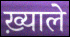
ख़्याले